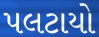
પલટાયો